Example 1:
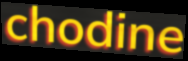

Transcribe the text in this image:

chodine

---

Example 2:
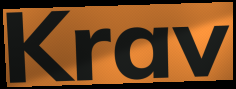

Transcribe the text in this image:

Krav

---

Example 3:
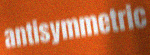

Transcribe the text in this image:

antisymmetric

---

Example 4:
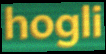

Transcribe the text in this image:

hogli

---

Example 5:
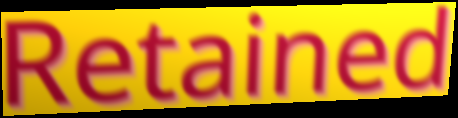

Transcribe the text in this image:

Retained